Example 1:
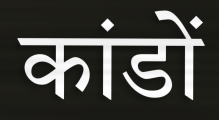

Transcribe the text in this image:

कांडों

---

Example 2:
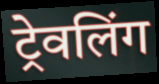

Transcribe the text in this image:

ट्रेवलिंग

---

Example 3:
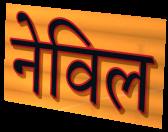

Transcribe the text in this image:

नेविल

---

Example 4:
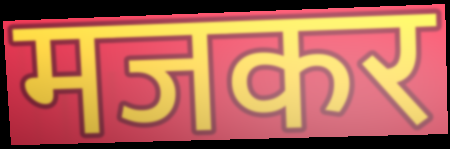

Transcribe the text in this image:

मजकर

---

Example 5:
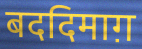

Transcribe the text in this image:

बददिमाग़